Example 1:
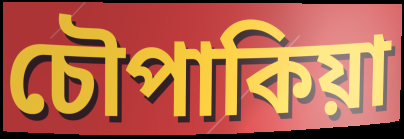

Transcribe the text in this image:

চৌপাকিয়া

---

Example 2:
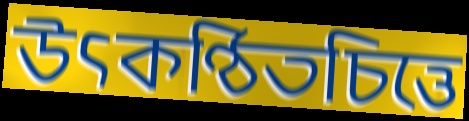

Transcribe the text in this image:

উৎকণ্ঠিতচিত্তে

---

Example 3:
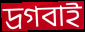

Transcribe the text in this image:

দ্রগবাই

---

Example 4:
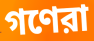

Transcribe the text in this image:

গণেরা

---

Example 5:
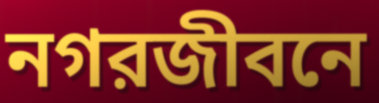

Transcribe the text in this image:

নগরজীবনে